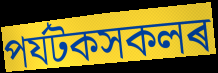
পৰ্যটকসকলৰ